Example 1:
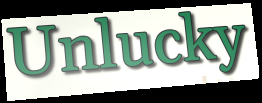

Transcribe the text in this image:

Unlucky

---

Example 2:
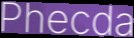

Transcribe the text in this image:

Phecda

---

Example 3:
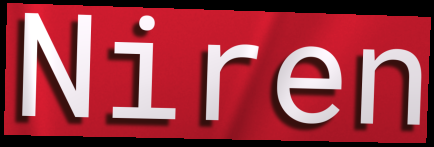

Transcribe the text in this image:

Niren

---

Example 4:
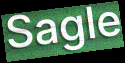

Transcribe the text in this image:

Sagle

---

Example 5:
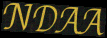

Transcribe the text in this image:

NDAA